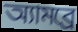
অ্যামব্রে